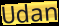
Udan